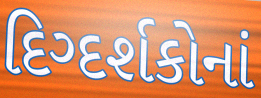
દિગ્દર્શકોનાં